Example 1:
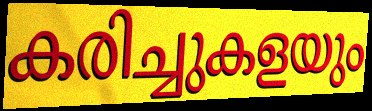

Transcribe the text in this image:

കരിച്ചുകളയും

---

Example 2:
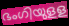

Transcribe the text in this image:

ഭംഗിയുളള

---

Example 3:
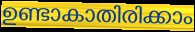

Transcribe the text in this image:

ഉണ്ടാകാതിരിക്കാം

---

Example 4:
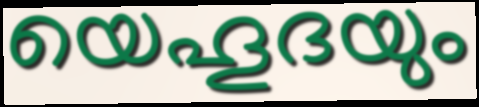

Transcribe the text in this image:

യെഹൂദയും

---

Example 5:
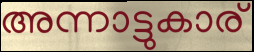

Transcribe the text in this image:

അന്നാട്ടുകാര്